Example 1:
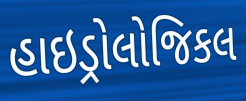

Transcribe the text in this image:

હાઇડ્રોલોજિકલ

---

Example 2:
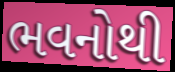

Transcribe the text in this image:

ભવનોથી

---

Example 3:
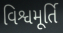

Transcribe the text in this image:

વિશ્વમૂર્તિ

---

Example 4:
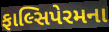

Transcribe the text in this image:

ફાલ્સિપેરમના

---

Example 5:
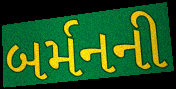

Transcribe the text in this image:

બર્મનની